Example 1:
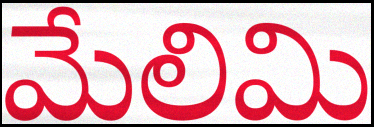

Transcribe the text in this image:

మేలిమి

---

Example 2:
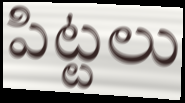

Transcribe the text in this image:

పిట్టలు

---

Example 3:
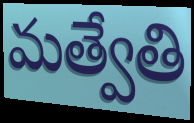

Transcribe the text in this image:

మత్వేతి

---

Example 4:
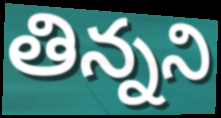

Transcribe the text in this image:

తిన్నని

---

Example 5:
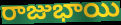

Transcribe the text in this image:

రాజుభాయి